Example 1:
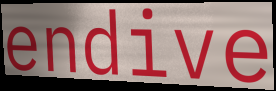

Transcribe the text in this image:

endive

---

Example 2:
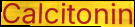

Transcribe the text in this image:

Calcitonin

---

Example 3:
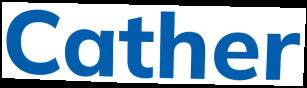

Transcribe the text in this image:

Cather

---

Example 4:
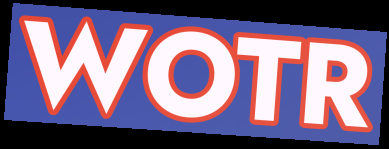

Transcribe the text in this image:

WOTR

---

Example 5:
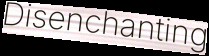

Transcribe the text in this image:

Disenchanting